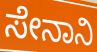
ಸೇನಾನಿ